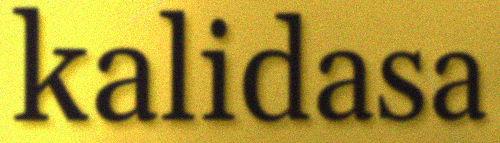
kalidasa